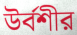
উর্বশীর